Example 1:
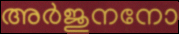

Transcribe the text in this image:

അർജുനനോ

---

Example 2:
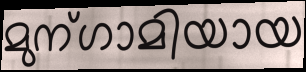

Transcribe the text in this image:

മുന്ഗാമിയായ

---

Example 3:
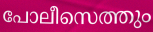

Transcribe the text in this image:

പോലീസെത്തും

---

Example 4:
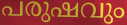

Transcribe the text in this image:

പരുഷവും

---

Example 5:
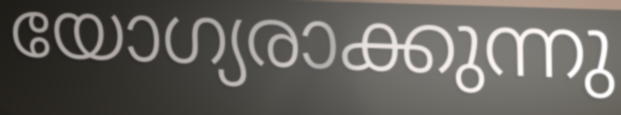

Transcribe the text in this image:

യോഗ്യരാക്കുന്നു